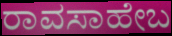
ರಾವಸಾಹೇಬ